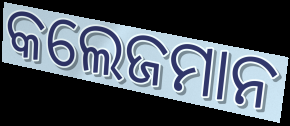
କଲେଜମାନ